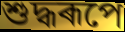
শুদ্ধৰূপে